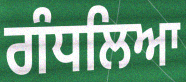
ਗੰਧਲਿਆ